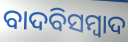
ବାଦବିସମ୍ବାଦ